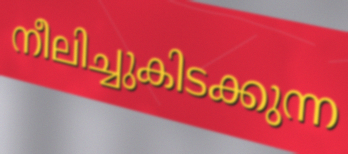
നീലിച്ചുകിടക്കുന്ന